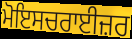
ਮੋਇਸਚਰਾਈਜ਼ਰ